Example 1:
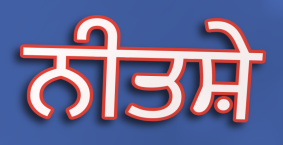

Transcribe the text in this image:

ਨੀਤਸ਼ੇ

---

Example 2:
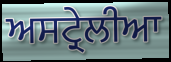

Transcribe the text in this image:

ਅਸਟ੍ਰੇਲੀਆ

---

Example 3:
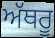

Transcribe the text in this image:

ਅੱਥਰੂ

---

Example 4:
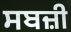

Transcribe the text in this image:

ਸਬਜ਼ੀ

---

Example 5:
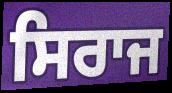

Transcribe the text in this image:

ਸਿਰਾਜ